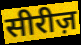
सीरीज़